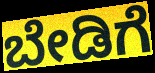
ಬೇಡಿಗೆ